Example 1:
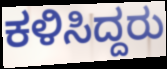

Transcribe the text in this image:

ಕಳಿಸಿದ್ದರು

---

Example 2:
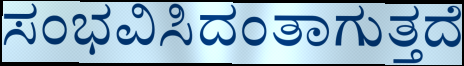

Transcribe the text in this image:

ಸಂಭವಿಸಿದಂತಾಗುತ್ತದೆ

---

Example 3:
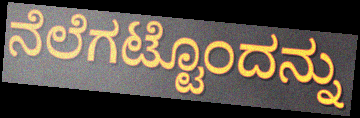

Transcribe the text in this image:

ನೆಲೆಗಟ್ಟೊಂದನ್ನು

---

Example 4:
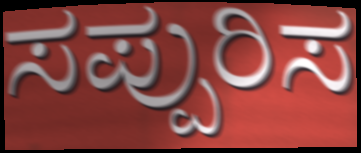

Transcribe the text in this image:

ಸಪ್ಪುರಿಸ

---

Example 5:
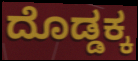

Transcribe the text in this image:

ದೊಡ್ಡಕ್ಕ